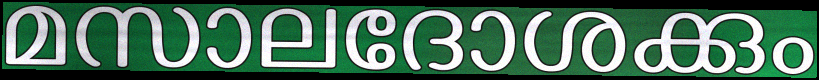
മസാലദോശക്കും